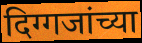
दिग्गजांच्या